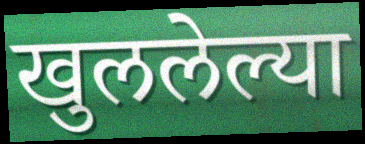
खुललेल्या